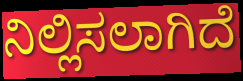
ನಿಲ್ಲಿಸಲಾಗಿದೆ